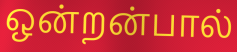
ஒன்றன்பால்